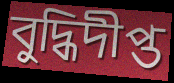
বুদ্ধিদীপ্ত